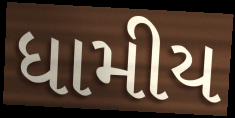
ધામીય